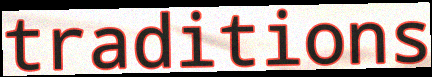
traditions